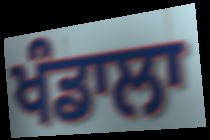
ਖੰਡਾਲਾ